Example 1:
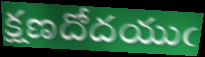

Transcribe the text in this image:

క్షణదోదయుఁ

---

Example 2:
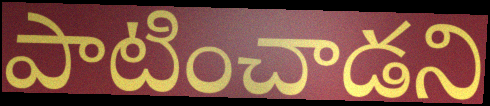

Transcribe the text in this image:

పాటించాడని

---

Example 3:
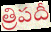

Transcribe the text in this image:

త్రిపదీ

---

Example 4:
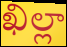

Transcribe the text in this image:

ఖిల్లా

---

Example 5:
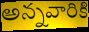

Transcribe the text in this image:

అన్నవారికి